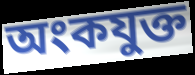
অংকযুক্ত